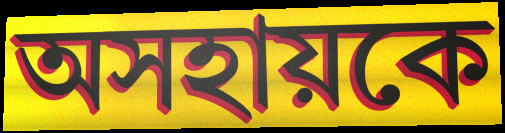
অসহায়কে